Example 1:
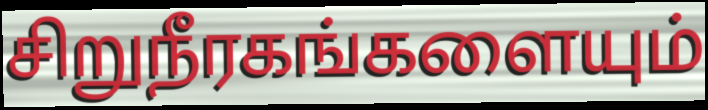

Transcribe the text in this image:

சிறுநீரகங்களையும்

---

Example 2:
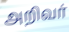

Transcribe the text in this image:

அறிவர்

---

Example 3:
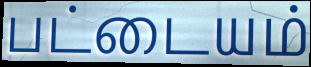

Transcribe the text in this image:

பட்டையம்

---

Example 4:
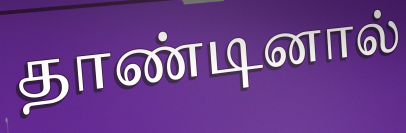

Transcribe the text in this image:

தாண்டினால்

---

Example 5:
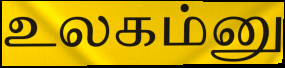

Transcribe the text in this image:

உலகம்னு